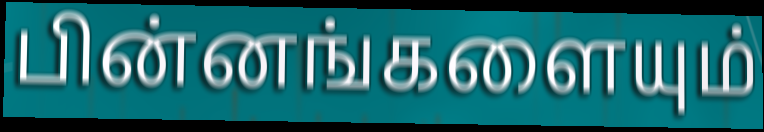
பின்னங்களையும்